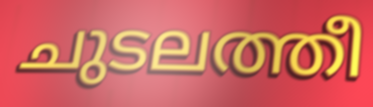
ചുടലത്തീ